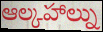
ఆల్కహాల్ను